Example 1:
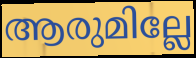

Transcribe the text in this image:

ആരുമില്ലേ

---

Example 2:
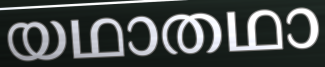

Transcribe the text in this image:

യഥാതഥാ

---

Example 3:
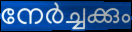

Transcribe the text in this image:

നേർച്ചക്കും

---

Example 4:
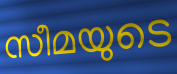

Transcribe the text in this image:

സീമയുടെ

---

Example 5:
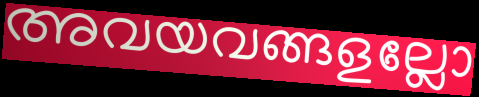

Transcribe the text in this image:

അവയവങ്ങളല്ലോ